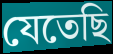
যেতেছি